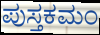
ಪುಸ್ತಕಮಂ